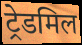
ट्रेडमिल